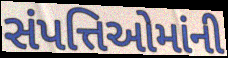
સંપત્તિઓમાંની